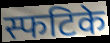
स्फटिके